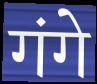
गंगे